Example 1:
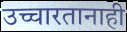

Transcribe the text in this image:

उच्चारतानाही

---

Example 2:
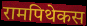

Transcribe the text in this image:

रामपिथेकस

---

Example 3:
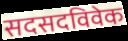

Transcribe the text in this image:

सदसदविवेक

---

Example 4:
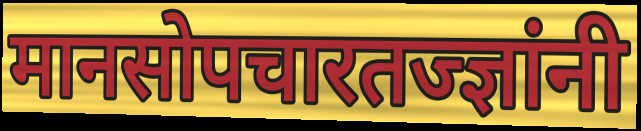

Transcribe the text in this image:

मानसोपचारतज्ज्ञांनी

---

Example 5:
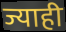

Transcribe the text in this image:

ज्याही